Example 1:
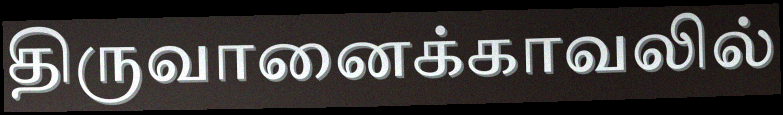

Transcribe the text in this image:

திருவானைக்காவலில்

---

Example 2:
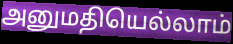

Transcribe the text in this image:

அனுமதியெல்லாம்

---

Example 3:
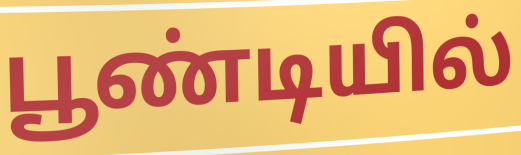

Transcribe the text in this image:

பூண்டியில்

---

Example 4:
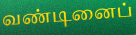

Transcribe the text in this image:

வண்டினைப்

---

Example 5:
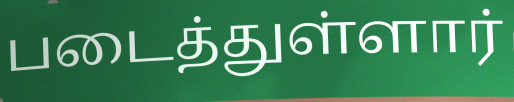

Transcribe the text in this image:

படைத்துள்ளார்